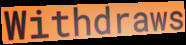
Withdraws